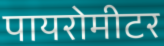
पायरोमीटर